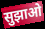
सुझाओ